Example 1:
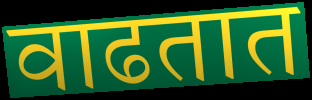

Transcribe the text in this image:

वाढतात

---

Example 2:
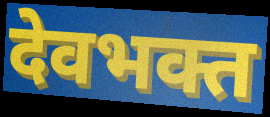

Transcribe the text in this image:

देवभक्त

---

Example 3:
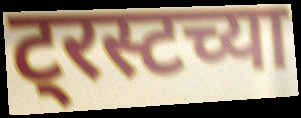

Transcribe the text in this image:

ट्रस्टच्या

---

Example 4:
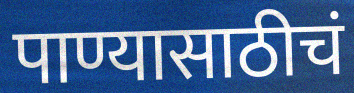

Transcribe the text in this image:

पाण्यासाठीचं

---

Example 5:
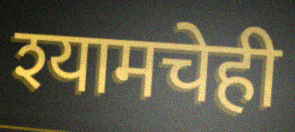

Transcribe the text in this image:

श्यामचेही